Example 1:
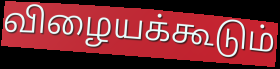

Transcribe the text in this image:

விழையக்கூடும்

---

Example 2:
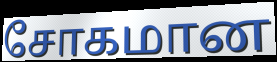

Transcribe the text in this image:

சோகமான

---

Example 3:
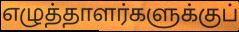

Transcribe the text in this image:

எழுத்தாளர்களுக்குப்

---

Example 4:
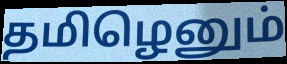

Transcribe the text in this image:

தமிழெனும்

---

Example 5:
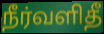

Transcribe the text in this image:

நீர்வளிதீ